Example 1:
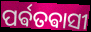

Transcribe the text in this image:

ପର୍ଵତଵାସୀ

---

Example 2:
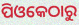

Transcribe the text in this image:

ପିଓକେଠାରୁ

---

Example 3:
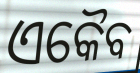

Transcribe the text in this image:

ଏକୈବ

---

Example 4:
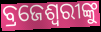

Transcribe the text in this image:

ବ୍ରଜେଶ୍ୱରୀଙ୍କୁ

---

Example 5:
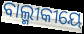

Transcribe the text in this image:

ବାଲ୍ମୀକୀୟେ